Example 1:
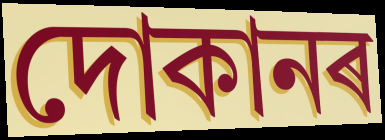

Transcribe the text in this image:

দোকানৰ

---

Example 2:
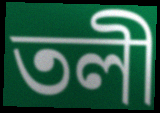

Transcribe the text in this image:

তলী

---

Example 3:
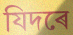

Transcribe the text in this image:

যিদৰে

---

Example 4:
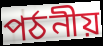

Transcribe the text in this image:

পঠনীয়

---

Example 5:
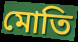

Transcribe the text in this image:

মোতি